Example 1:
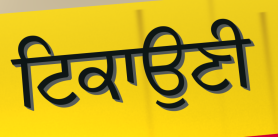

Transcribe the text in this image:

ਟਿਕਾਉਣੀ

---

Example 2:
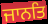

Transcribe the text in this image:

ਜਾਨਤਿ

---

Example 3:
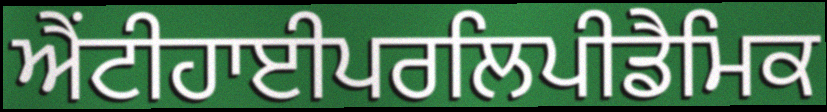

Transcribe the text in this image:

ਐਂਟੀਹਾਈਪਰਲਿਪੀਡੈਮਿਕ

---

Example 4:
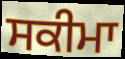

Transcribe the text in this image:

ਸਕੀਮਾ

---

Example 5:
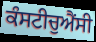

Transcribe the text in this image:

ਕੰਸਟੀਚੁਐਂਸੀ